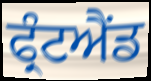
ਫ੍ਰੰਟਐਂਡ